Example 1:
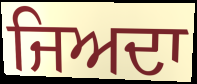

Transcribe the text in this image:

ਜਿਅਦਾ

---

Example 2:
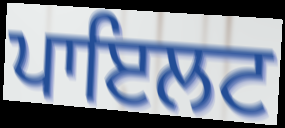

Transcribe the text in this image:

ਪਾਇਲਟ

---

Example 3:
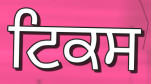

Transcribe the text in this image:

ਟਿਕਸ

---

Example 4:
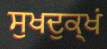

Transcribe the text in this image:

ਸੁਖਦੁਕ੍ਖਂ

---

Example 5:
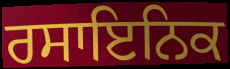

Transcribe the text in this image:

ਰਸਾਇਨਿਕ